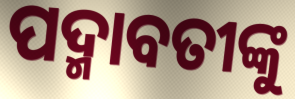
ପଦ୍ମାବତୀଙ୍କୁ